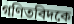
গণিতবিদকে